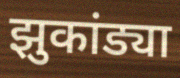
झुकांड्या